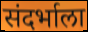
संदर्भाला